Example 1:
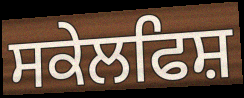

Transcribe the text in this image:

ਸਕੇਲਫਿਸ਼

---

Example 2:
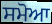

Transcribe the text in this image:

ਸਮੋਆ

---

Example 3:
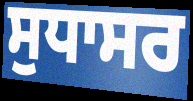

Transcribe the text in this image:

ਸੁਧਾਸਰ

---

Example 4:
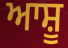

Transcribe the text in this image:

ਆਸ਼ੂ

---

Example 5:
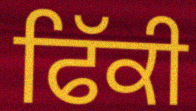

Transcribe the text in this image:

ਫਿੱਕੀ